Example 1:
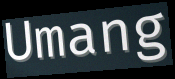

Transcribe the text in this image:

Umang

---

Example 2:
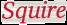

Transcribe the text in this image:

Squire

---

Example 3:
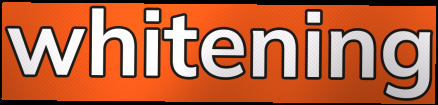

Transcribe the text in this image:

whitening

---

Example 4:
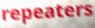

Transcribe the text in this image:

repeaters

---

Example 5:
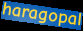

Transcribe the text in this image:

haragopal